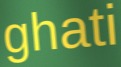
ghati